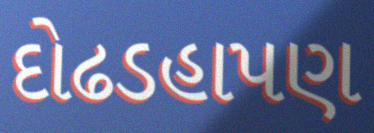
દોઢડહાપણ